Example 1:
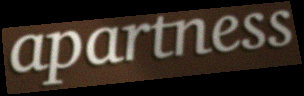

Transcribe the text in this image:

apartness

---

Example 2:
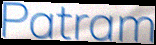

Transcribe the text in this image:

Patram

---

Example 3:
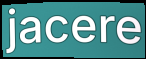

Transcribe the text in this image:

jacere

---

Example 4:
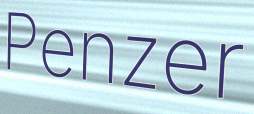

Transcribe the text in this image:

Penzer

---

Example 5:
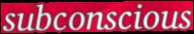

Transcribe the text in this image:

subconscious